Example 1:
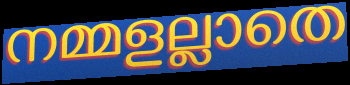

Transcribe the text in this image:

നമ്മളല്ലാതെ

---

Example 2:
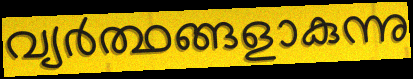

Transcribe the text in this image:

വ്യർത്ഥങ്ങളാകുന്നു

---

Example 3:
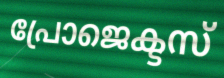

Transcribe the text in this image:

പ്രോജെക്ടസ്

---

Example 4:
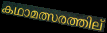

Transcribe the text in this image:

കഥാമത്സരത്തില്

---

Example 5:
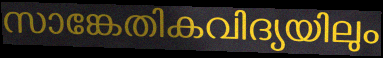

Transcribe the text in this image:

സാങ്കേതികവിദ്യയിലും